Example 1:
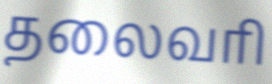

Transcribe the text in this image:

தலைவரி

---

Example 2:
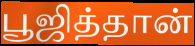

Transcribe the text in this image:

பூஜித்தான்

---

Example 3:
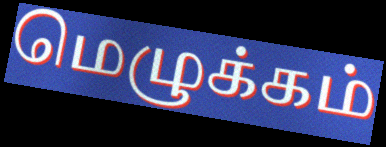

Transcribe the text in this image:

மெழுக்கம்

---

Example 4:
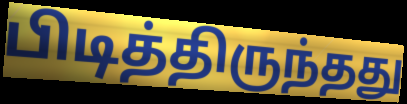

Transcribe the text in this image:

பிடித்திருந்தது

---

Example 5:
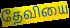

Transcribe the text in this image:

தேவியை